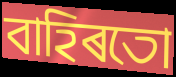
বাহিৰতো